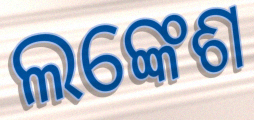
ଲଙ୍କେଶ